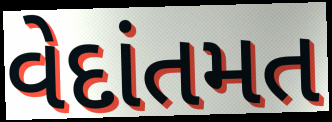
વેદાંતમત